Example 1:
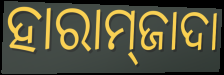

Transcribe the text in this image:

ହାରାମ୍‌ଜାଦା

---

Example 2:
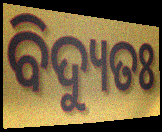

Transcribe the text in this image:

ବିଦ୍ୟୁତଃ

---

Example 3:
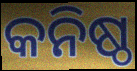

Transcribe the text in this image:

କନିଷ୍ଠ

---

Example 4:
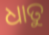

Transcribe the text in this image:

ଧାତୁ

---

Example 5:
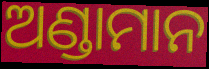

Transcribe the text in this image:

ଅଣ୍ଡାମାନ